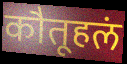
कौतूहलं